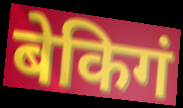
बेकिगं